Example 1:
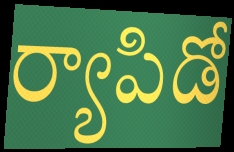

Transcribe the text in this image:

ర్యాపిడో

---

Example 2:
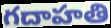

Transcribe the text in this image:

గదాహతి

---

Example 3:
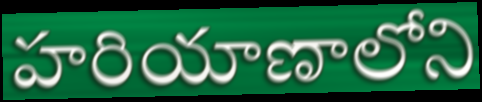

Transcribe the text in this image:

హరియాణాలోని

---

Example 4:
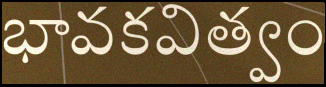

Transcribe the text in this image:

భావకవిత్వం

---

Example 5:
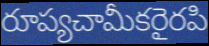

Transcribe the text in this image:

రూప్యచామీకరైరపి